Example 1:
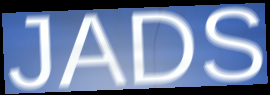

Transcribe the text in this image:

JADS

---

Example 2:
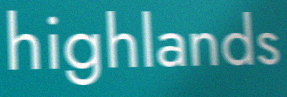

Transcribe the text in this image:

highlands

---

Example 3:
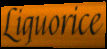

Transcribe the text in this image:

Liquorice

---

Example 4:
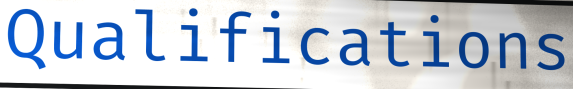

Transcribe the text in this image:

Qualifications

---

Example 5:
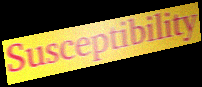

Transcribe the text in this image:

Susceptibility